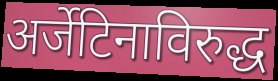
अर्जेटिनाविरुद्ध